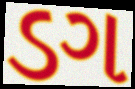
ડગ